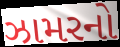
ઝામરનો